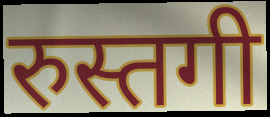
रुस्तगी